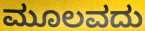
ಮೂಲವದು